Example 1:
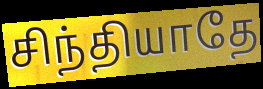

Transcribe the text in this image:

சிந்தியாதே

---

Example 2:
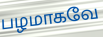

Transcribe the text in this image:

பழமாகவே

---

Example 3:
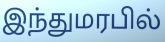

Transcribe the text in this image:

இந்துமரபில்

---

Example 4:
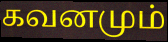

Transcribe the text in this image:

கவனமும்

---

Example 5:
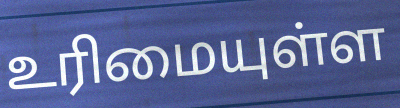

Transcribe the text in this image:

உரிமையுள்ள